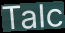
Talc